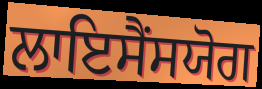
ਲਾਇਸੈਂਸਯੋਗ